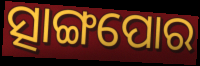
ତ୍ସାଙ୍ଗପୋର